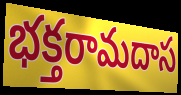
భక్తరామదాస